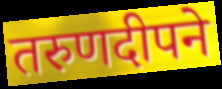
तरुणदीपने